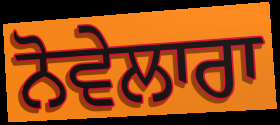
ਨੋਵੇਲਾਰਾ